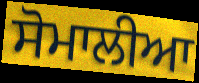
ਸੋਮਾਲੀਆ